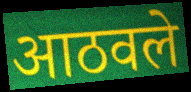
आठवले